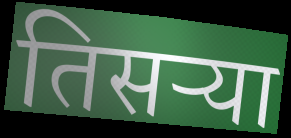
तिसऱ्या